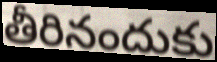
తీరినందుకు